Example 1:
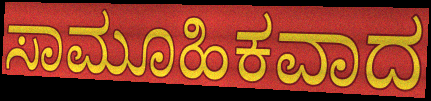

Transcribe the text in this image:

ಸಾಮೂಹಿಕವಾದ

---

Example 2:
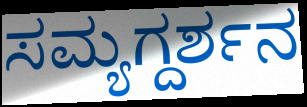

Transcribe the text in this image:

ಸಮ್ಯಗ್ದರ್ಶನ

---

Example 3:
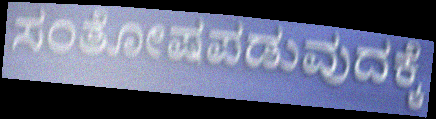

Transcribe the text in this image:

ಸಂತೋಷಪಡುವುದಕ್ಕೆ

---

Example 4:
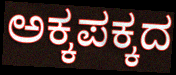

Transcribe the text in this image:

ಅಕ್ಕಪಕ್ಕದ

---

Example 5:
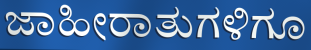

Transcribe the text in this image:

ಜಾಹೀರಾತುಗಳಿಗೂ